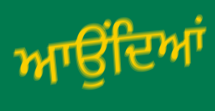
ਆਉਂਦਿਆਂ